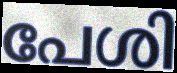
പേശി